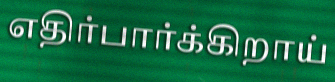
எதிர்பார்க்கிறாய்